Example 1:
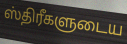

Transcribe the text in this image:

ஸ்திரீகளுடைய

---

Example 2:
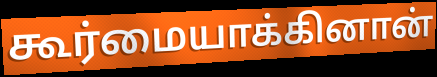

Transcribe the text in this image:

கூர்மையாக்கினான்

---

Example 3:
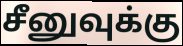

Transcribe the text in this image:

சீனுவுக்கு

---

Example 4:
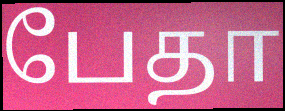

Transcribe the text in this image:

பேதா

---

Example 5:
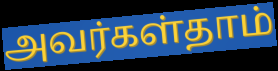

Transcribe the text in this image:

அவர்கள்தாம்